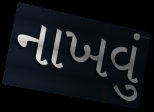
નાખવું